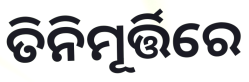
ତିନିମୂର୍ତ୍ତିରେ